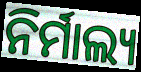
ନିର୍ମାଲ୍ୟ